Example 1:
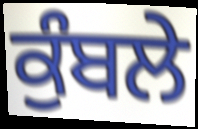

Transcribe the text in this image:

ਕੁੰਬਲੇ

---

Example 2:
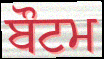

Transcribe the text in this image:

ਬੌਟਮ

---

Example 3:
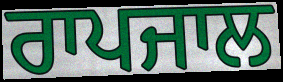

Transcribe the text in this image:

ਰਾਪਜਾਲ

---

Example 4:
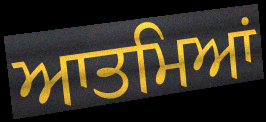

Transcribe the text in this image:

ਆਤਮਿਆਂ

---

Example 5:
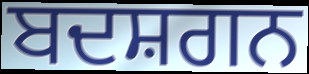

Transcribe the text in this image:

ਬਦਸ਼ਗਨ